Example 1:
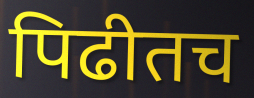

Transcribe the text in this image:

पिढीतच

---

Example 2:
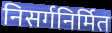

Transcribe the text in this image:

निसर्गनिर्मित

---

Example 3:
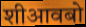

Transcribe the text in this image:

शीआवबो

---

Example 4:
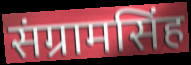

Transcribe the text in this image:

संग्रामसिंह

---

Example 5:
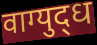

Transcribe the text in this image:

वाग्युद्ध